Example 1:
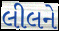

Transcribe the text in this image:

લીલને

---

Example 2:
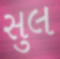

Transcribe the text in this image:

સુલ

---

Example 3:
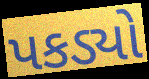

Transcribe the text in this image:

પકડ્યો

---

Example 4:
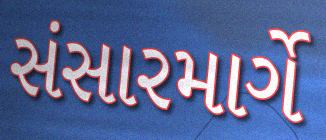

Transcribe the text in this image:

સંસારમાર્ગે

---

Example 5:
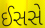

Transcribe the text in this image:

ઈસસે